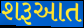
શરૂઆત